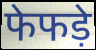
फेफड़े